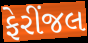
ફેરીંજલ